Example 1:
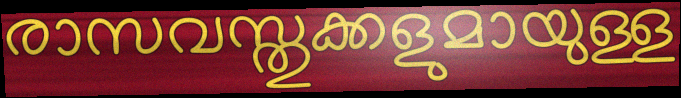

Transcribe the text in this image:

രാസവസ്തുക്കളുമായുള്ള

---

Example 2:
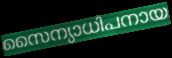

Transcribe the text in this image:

സൈന്യാധിപനായ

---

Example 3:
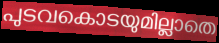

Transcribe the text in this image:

പുടവകൊടയുമില്ലാതെ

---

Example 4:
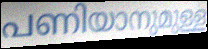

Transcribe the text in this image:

പണിയാനുമുള്ള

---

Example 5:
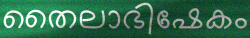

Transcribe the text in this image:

തൈലാഭിഷേകം